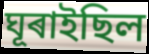
ঘূৰাইছিল